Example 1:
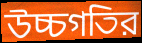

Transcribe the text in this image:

উচ্চগতির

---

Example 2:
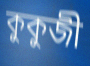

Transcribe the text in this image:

কুকুজী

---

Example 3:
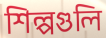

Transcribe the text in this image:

শিল্পগুলি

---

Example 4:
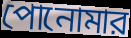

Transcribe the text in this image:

পোনোমার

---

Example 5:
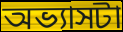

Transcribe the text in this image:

অভ্যাসটা